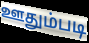
ஊதும்படி